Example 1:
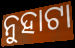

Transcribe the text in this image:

ନୁହାଟା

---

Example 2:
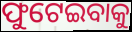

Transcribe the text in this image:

ଫୁଟେଇବାକୁ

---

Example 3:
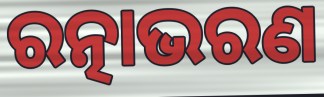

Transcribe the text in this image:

ରତ୍ନାଭରଣ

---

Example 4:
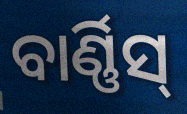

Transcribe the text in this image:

ବାର୍ଣ୍ଣିସ୍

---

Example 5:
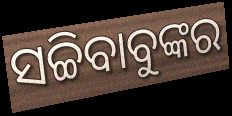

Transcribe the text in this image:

ସଚ୍ଚିବାବୁଙ୍କର